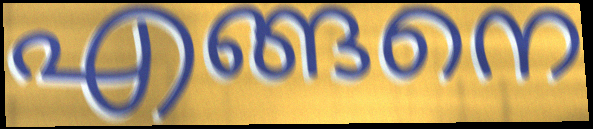
എങ്ങനെ